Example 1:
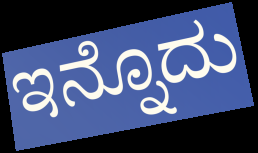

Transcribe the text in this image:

ಇನ್ನೊದು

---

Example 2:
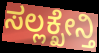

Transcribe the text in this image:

ಸಲ್ಲಕ್ಖೇನ್ತಿ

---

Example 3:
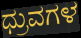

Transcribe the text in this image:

ಧ್ರುವಗಳ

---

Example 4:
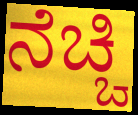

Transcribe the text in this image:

ನೆಚ್ಚಿ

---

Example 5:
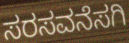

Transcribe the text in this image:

ಸರಸವನೆಸಗಿ